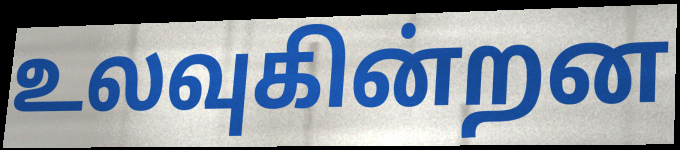
உலவுகின்றன